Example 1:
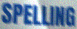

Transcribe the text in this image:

SPELLING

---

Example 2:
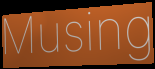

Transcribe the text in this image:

Musing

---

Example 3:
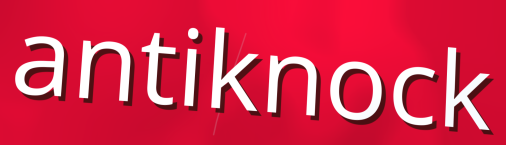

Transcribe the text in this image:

antiknock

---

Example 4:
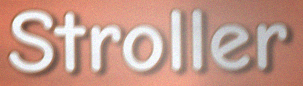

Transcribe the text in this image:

Stroller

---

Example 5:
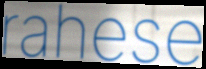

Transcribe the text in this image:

rahese